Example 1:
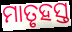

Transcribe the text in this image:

ମାତୃହସ୍ତ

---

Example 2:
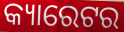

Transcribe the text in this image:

କ୍ୟାରେଟର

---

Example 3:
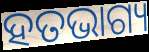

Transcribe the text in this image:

ହତଭାଗ୍ୟ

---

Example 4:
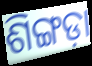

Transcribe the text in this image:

ଶିଙ୍ଗଡ଼ା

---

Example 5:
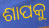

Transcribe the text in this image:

ଶାପକୁ